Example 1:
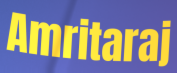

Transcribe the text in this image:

Amritaraj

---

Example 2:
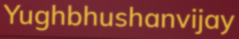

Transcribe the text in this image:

Yughbhushanvijay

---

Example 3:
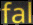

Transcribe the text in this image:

fal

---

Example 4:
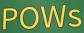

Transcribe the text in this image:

POWs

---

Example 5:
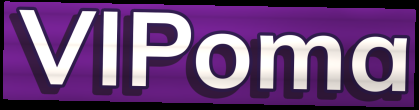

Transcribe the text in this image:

VIPoma